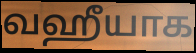
வஹீயாக